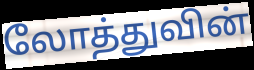
லோத்துவின்